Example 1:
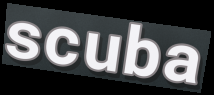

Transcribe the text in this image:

scuba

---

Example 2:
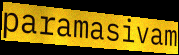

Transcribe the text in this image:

paramasivam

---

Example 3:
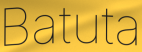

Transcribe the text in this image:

Batuta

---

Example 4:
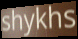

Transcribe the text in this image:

shykhs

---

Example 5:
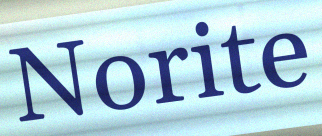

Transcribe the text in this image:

Norite